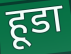
हूडा